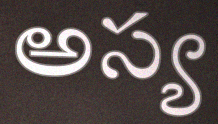
అస్య